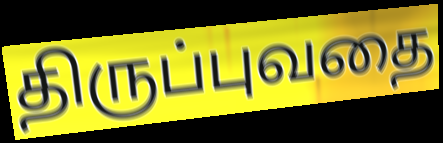
திருப்புவதை